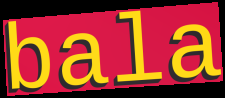
bala